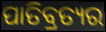
ପାତିବ୍ରତ୍ୟର